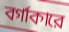
বর্গাকারে